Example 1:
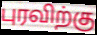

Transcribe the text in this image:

புரவிற்கு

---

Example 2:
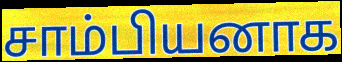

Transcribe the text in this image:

சாம்பியனாக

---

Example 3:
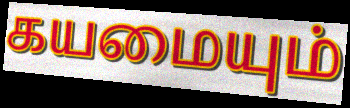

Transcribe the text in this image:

கயமையும்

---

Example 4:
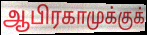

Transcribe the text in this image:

ஆபிரகாமுக்குக்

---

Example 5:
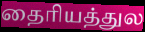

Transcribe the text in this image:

தைரியத்துல